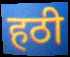
हठी